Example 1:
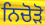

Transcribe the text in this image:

ਨਿਚੋੜੋ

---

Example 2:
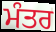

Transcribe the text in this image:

ਮੰਤਰ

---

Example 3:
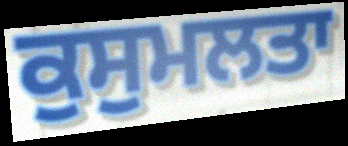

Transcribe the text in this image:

ਕੁਸੁਮਲਤਾ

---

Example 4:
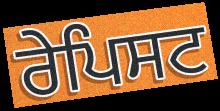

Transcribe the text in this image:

ਰੇਪਿਸਟ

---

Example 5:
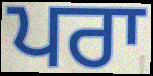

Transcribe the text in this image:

ਪਰਾ